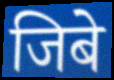
जिबे